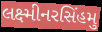
લક્ષ્મીનરસિંહમુ